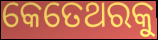
କେତେଥରକୁ